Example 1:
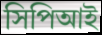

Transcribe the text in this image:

সিপিআই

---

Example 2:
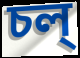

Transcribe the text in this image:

চল্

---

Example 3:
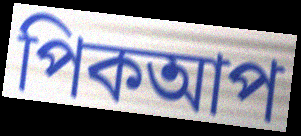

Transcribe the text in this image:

পিকআপ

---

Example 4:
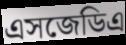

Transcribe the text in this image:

এসজেডিএ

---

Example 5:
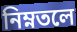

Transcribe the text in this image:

নিম্নতলে